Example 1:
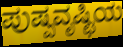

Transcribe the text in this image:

ಪುಷ್ಪವೃಷ್ಟಿಯ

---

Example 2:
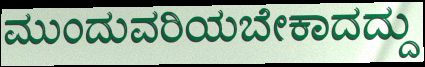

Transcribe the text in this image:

ಮುಂದುವರಿಯಬೇಕಾದದ್ದು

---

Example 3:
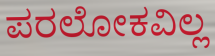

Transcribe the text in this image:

ಪರಲೋಕವಿಲ್ಲ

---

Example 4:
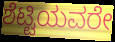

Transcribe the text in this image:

ಶೆಟ್ಟಿಯವರೇ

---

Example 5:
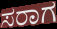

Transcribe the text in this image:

ಸರಾಗ